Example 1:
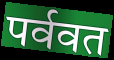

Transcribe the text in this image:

पर्ववत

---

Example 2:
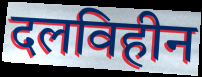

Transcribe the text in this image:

दलविहीन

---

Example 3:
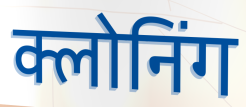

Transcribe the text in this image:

क्लोनिंग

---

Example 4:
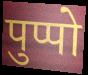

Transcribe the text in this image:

पुप्पो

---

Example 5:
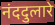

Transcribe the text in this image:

नंददुलारे